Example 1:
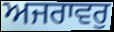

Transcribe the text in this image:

ਅਜਰਾਵਰੁ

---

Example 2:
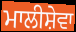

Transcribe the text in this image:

ਮਾਲੀਸ਼ੇਵਾ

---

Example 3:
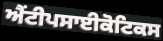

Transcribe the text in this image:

ਐਂਟੀਪਸਾਈਕੋਟਿਕਸ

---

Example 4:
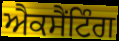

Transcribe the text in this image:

ਐਕਸੈਂਟਿੰਗ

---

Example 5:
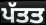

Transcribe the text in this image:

ਪੱਤਤ